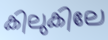
കിലുകിലേ